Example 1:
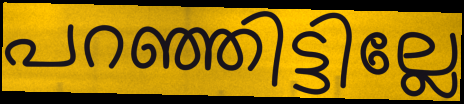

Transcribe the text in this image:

പറഞ്ഞിട്ടില്ലേ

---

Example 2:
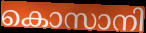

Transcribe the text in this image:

കൊസാനി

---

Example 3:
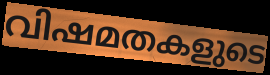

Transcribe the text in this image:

വിഷമതകളുടെ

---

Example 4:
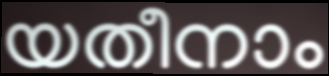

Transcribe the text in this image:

യതീനാം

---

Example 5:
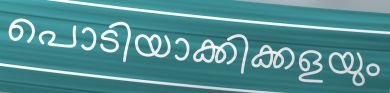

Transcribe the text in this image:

പൊടിയാക്കിക്കളയും